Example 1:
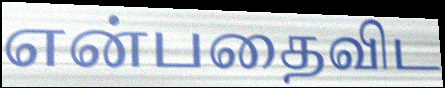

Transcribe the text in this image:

என்பதைவிட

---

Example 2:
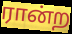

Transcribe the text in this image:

ரான்ற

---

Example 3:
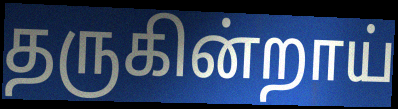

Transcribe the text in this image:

தருகின்றாய்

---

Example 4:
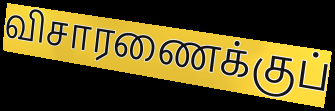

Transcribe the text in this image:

விசாரணைக்குப்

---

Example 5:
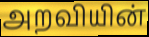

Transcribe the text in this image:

அறவியின்